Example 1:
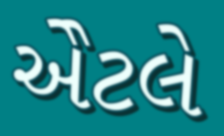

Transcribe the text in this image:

એેટલે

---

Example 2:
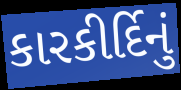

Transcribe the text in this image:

કારકીર્દિનું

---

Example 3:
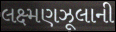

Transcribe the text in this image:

લક્ષ્મણઝૂલાની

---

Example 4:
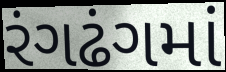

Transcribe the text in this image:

રંગઢંગમાં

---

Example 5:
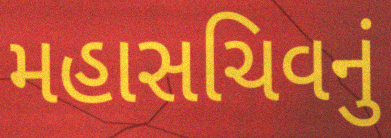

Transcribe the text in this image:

મહાસચિવનું